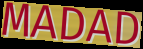
MADAD